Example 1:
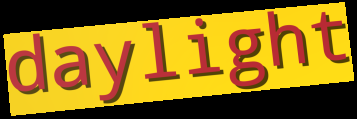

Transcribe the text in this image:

daylight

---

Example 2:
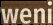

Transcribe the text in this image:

weni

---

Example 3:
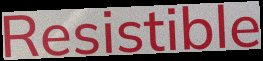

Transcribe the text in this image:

Resistible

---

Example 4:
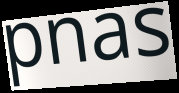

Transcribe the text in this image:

pnas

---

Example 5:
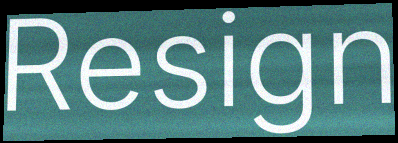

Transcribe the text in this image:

Resign